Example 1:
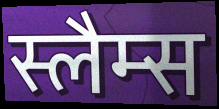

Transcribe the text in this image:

स्लैम्स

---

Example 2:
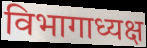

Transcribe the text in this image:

विभागाध्यक्ष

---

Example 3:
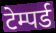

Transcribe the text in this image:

टेम्पर्ड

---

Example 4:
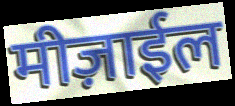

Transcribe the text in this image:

मीज़ाईल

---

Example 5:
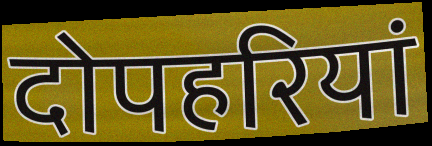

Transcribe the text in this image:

दोपहरियां